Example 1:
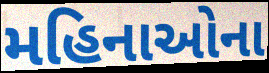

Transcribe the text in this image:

મહિનાઓના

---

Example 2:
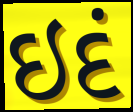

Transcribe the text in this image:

ઇદં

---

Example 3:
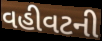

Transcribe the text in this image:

વહીવટની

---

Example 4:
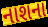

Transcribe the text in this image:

નાશના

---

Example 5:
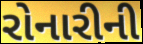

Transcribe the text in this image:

રોનારીની